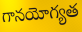
గానయోగ్యత